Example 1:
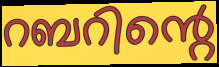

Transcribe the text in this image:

റബറിന്റെ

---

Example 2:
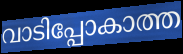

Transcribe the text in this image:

വാടിപ്പോകാത്ത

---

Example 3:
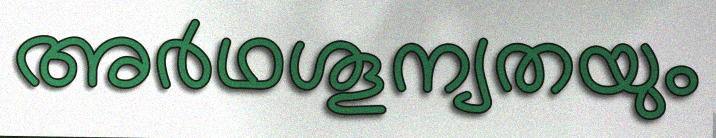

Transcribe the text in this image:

അർഥശൂന്യതയും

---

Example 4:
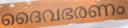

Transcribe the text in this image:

ദൈവഭരണം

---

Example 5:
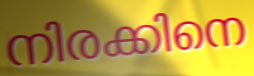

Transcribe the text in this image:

നിരക്കിനെ